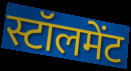
स्टॉलमेंट